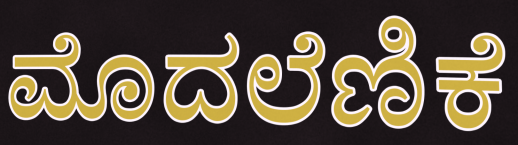
ಮೊದಲೆಣಿಕೆ